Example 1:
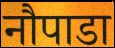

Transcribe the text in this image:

नौपाडा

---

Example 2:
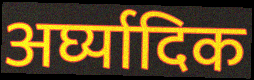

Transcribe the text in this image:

अर्घ्यादिक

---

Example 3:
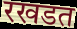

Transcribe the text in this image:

रखडत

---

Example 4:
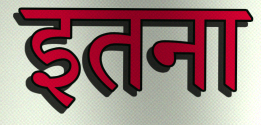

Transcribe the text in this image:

इतना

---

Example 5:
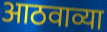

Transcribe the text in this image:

आठवाव्या